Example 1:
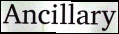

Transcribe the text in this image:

Ancillary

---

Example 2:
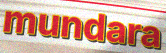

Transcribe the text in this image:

mundara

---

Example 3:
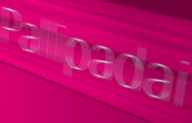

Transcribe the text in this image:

Pallipadai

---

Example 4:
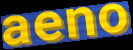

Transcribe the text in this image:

aeno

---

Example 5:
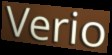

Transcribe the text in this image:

Verio